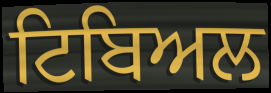
ਟਿਬਿਅਲ